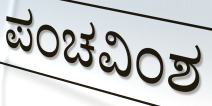
ಪಂಚವಿಂಶ